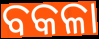
ବକଳା